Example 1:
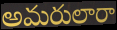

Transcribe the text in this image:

అమరులారా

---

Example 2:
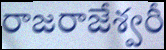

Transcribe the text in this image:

రాజరాజేశ్వరీ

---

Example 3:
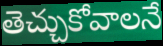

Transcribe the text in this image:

తెచ్చుకోవాలనే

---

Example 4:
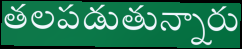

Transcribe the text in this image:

తలపడుతున్నారు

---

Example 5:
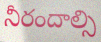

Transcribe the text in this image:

నీరందాల్సి